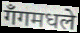
गँगमधले